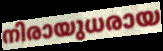
നിരായുധരായ